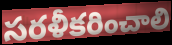
సరళీకరించాలి